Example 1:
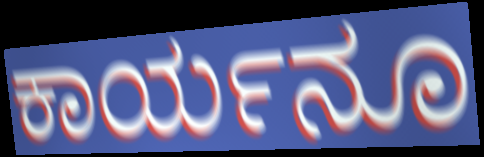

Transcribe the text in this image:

ಕಾರ್ಯನೂ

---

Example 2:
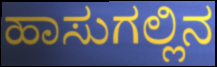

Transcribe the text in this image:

ಹಾಸುಗಲ್ಲಿನ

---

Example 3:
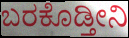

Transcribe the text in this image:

ಬರಕೊಡ್ತೀನಿ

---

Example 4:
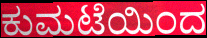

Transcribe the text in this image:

ಕುಮಟೆಯಿಂದ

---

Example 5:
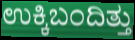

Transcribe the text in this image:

ಉಕ್ಕಿಬಂದಿತ್ತು